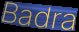
Badra